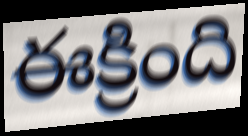
ఈక్రింది